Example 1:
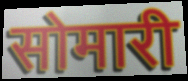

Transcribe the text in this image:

सोमारी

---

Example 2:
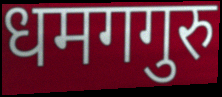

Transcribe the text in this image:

धमगगुरु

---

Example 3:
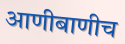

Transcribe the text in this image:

आणीबाणीच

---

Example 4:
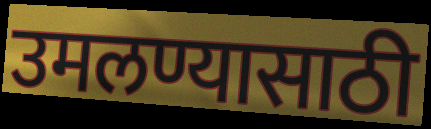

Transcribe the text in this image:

उमलण्यासाठी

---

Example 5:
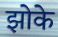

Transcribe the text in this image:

झोके